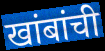
खांबांची